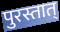
पुरस्तात्